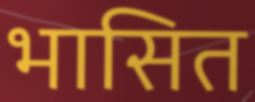
भासित